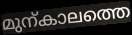
മുന്കാലത്തെ